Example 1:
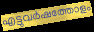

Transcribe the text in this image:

എട്ടുവർഷത്തോളം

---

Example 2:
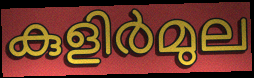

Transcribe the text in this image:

കുളിർമുല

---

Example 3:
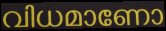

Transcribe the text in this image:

വിധമാണോ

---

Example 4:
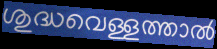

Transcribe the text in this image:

ശുദ്ധവെള്ളത്താൽ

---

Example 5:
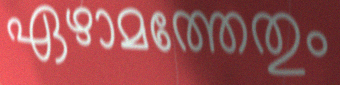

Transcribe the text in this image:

ഏഴാമത്തേതും